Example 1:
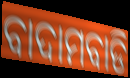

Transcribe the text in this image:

ବାଦାମବାଡି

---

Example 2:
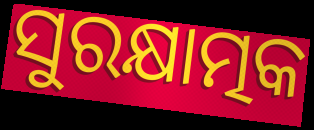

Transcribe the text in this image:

ସୁରକ୍ଷାତ୍ମକ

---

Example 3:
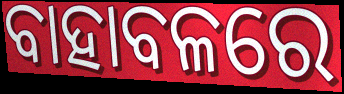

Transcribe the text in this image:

ବାହାବଳରେ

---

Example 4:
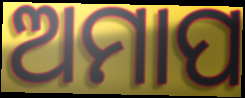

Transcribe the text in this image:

ଅମାପ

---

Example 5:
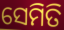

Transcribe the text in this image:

ସେମିତି